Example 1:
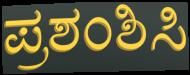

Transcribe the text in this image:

ಪ್ರಶಂಶಿಸಿ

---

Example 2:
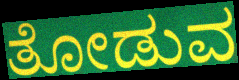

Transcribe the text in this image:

ತೋಡುವ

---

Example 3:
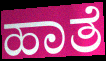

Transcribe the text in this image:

ಹಾತೆ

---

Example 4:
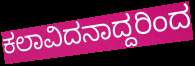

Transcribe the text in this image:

ಕಲಾವಿದನಾದ್ದರಿಂದ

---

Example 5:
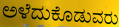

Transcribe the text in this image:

ಅಳೆದುಕೊಡುವರು